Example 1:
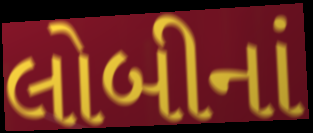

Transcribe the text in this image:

લોબીનાં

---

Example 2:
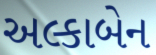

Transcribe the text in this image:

અલ્કાબેન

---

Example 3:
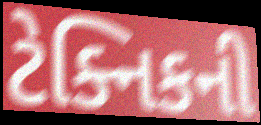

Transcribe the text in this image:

ટેક્નિકની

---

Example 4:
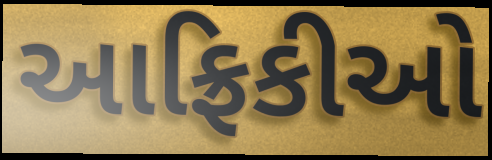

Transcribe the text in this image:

આફ્રિકીઓ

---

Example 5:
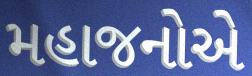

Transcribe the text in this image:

મહાજનોએ